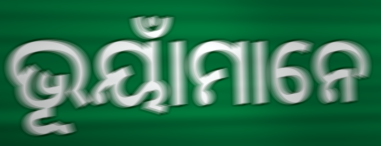
ଭୂୟାଁମାନେ